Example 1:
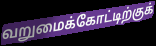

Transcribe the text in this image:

வறுமைக்கோட்டிற்குக்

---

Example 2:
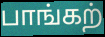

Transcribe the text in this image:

பாங்கற்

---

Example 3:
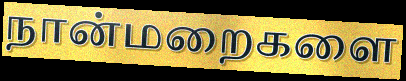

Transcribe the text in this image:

நான்மறைகளை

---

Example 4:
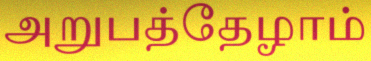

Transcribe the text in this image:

அறுபத்தேழாம்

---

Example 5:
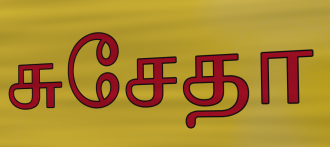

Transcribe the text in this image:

சுசேதா